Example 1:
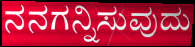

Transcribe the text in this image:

ನನಗನ್ನಿಸುವುದು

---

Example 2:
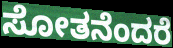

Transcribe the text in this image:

ಸೋತನೆಂದರೆ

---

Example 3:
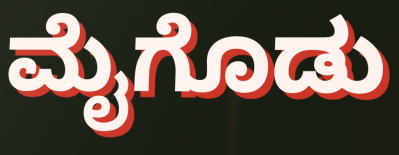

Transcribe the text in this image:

ಮೈಗೊಡು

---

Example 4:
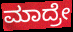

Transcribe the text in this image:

ಮಾದ್ರೇ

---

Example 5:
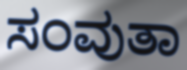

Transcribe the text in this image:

ಸಂವುತಾ